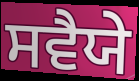
ਸਵੈਯੇ